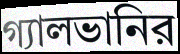
গ্যালভানির